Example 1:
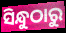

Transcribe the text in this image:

ସିନ୍ଧୁଠାରୁ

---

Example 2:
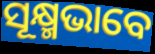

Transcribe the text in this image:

ସୂକ୍ଷ୍ମଭାବେ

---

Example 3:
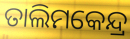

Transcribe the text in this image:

ତାଲିମକେନ୍ଦ୍ର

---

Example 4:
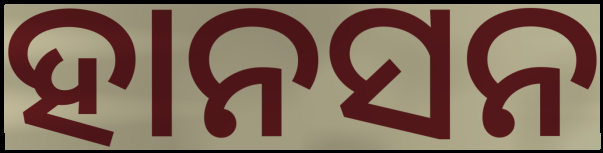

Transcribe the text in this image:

ହାନସନ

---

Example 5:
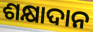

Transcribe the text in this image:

ଶକ୍ଷାଦାନ